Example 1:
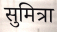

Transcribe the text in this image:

सुमित्रा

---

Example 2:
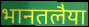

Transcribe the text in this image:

भानतलैया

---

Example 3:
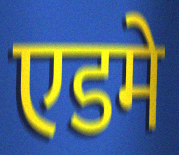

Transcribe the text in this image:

एडमे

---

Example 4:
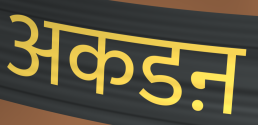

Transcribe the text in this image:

अकडऩ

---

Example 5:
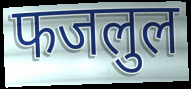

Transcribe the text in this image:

फजलुल